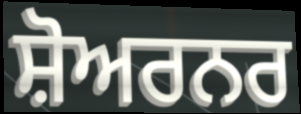
ਸ਼ੋਅਰਨਰ